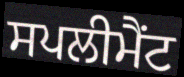
ਸਪਲੀਮੈਂਟ